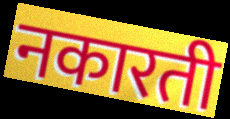
नकारती